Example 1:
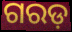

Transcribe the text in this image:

ଗରଡ଼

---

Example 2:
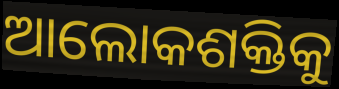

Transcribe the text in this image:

ଆଲୋକଶକ୍ତିକୁ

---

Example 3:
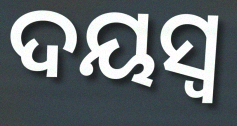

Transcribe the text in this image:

ଦୟସ୍ଵ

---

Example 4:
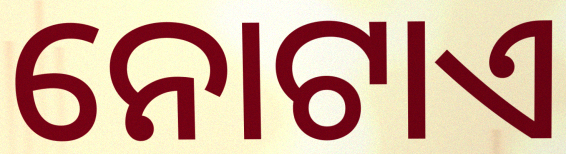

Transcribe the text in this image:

ନୋଟାଏ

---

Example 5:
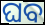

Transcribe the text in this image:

ଘବ